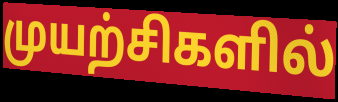
முயற்சிகளில்